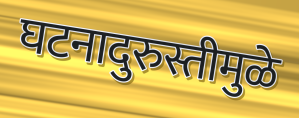
घटनादुरुस्तीमुळे